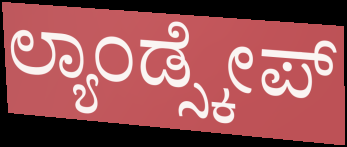
ಲ್ಯಾಂಡ್ಸ್ಕೇಪ್